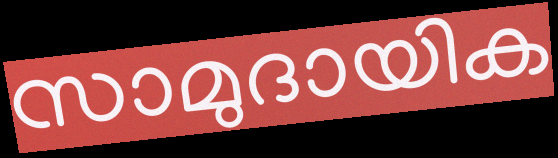
സാമുദായിക